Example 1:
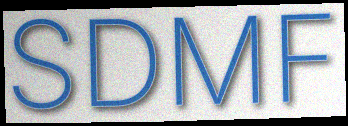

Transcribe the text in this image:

SDMF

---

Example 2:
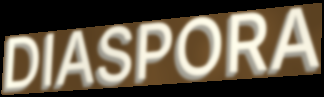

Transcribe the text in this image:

DIASPORA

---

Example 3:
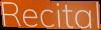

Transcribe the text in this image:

Recital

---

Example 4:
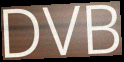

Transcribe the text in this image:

DVB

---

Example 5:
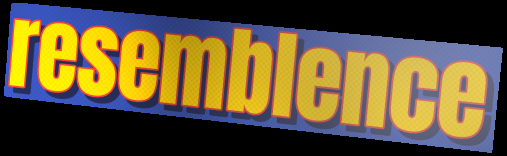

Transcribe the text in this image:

resemblence